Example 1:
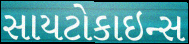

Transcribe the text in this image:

સાયટોકાઇન્સ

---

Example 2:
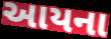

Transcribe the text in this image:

આયના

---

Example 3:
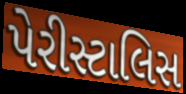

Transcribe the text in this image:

પેરીસ્ટાલિસ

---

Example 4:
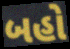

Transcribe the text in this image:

બહો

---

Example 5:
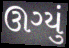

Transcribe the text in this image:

ઊગ્યું